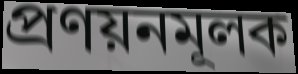
প্রণয়নমূলক